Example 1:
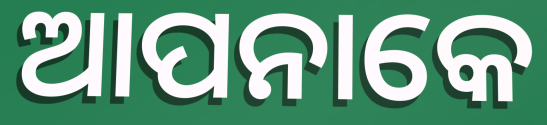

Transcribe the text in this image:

ଆପନାକେ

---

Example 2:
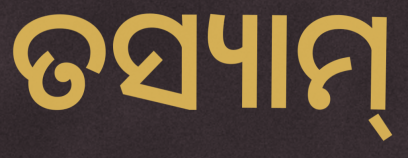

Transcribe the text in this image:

ତସ୍ୟାମ୍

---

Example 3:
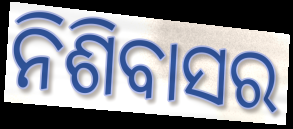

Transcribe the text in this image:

ନିଶିବାସର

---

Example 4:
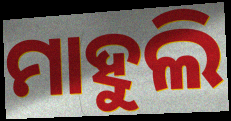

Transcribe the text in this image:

ମାହୁଲି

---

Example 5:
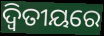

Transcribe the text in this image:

ଦ୍ଵିତୀୟରେ